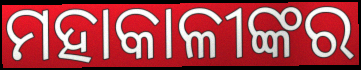
ମହାକାଳୀଙ୍କର